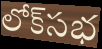
లోక్‌సభ